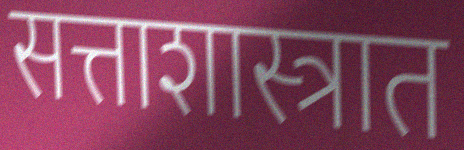
सत्ताशास्त्रात